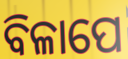
ବିଳାପେ